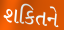
શકિતને